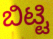
ಬಿಟ್ಟಿ